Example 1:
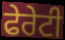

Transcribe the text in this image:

ਫੇਰੇਟੀ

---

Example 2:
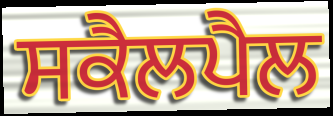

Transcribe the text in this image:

ਸਕੈਲਪੈਲ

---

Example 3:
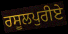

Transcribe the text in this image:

ਰਸੂਲਪੁਰੀਏ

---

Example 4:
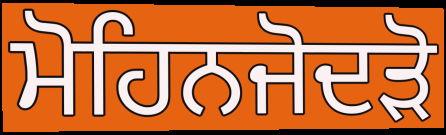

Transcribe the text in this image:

ਮੋਹਿਨਜੋਦੜੋ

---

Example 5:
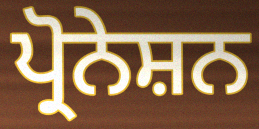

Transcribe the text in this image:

ਪ੍ਰੋਨੇਸ਼ਨ